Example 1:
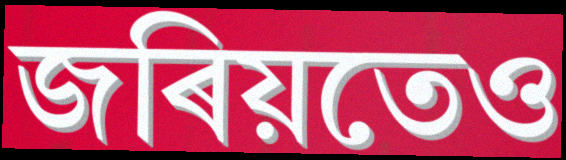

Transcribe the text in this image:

জৰিয়তেও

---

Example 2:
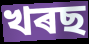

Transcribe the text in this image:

খৰছ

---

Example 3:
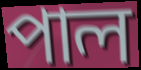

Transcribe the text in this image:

পাল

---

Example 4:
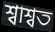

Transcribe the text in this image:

শ্বাশ্বত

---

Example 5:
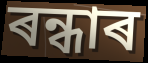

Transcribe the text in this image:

ৰন্ধাৰ